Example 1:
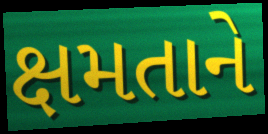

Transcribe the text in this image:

ક્ષમતાને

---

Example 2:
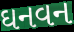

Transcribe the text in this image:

ઘનવન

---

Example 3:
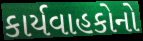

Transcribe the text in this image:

કાર્યવાહકોનો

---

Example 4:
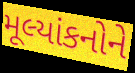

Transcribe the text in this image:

મૂલ્યાંકનોને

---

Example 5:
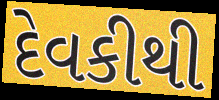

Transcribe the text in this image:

દેવકીથી